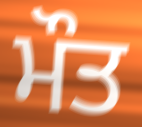
ਮੌਤ